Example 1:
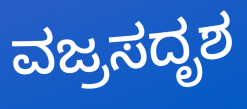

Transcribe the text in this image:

ವಜ್ರಸದೃಶ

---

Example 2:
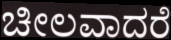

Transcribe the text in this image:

ಚೀಲವಾದರೆ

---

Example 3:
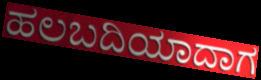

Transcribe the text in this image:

ಹಲಬದಿಯಾದಾಗ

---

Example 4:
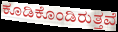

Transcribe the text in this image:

ಕೂಡಿಕೊಂಡಿರುತ್ತವೆ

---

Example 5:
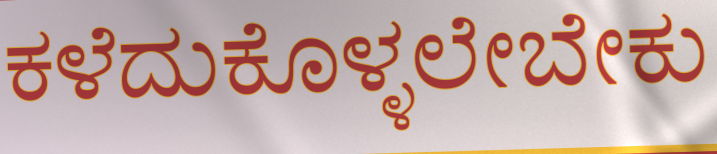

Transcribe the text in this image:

ಕಳೆದುಕೊಳ್ಳಲೇಬೇಕು